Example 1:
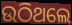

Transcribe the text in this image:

ଉଠିଥଲେ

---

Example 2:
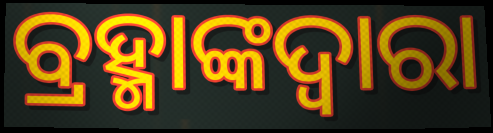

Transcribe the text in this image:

ବ୍ରହ୍ମାଙ୍କଦ୍ୱାରା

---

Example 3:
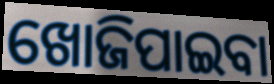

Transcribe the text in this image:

ଖୋଜିପାଇବା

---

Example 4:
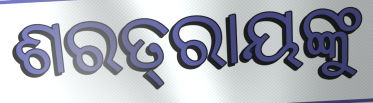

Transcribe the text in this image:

ଶରତ୍‌ରାୟଙ୍କୁ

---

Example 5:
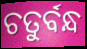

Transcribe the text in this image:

ଚତୁର୍ବନ୍ଧ